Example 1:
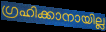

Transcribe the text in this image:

ഗ്രഹിക്കാനായില്ല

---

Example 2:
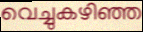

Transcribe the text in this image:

വെച്ചുകഴിഞ്ഞ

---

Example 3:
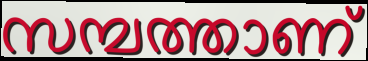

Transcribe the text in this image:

സമ്പത്താണ്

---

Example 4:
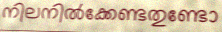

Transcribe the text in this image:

നിലനിൽക്കേണ്ടതുണ്ടോ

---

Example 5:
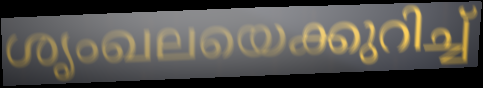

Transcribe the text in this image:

ശൃംഖലയെക്കുറിച്ച്